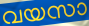
വയസാ